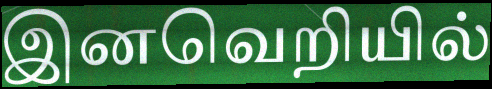
இனவெறியில்